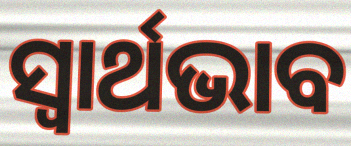
ସ୍ଵାର୍ଥଭାବ